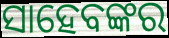
ସାହେବଙ୍କର